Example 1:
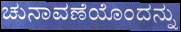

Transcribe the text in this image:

ಚುನಾವಣೆಯೊಂದನ್ನು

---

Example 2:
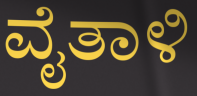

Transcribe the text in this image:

ವೈತಾಳಿ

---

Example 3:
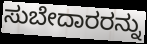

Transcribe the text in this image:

ಸುಬೇದಾರರನ್ನು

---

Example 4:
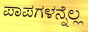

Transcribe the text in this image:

ಪಾಪಗಳನ್ನೆಲ್ಲ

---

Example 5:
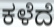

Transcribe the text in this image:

ಕಳೆದೆ